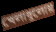
খেলাধুলোয়